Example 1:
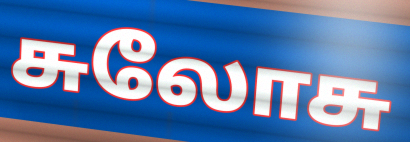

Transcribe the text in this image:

சுலோசு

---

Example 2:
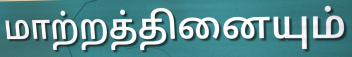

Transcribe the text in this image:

மாற்றத்தினையும்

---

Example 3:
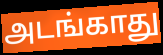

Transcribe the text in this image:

அடங்காது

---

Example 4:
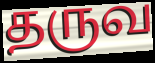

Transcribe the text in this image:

தருவ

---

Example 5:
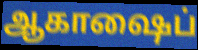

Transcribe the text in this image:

ஆகாஷைப்